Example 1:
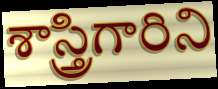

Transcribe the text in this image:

శాస్త్రిగారిని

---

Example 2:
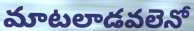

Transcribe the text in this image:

మాటలాడవలెనో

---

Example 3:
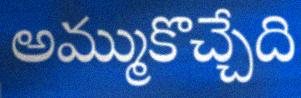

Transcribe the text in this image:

అమ్ముకొచ్చేది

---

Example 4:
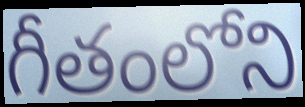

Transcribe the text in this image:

గీతంలోని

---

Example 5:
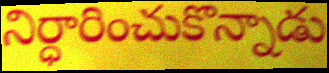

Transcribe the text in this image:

నిర్ధారించుకొన్నాడు